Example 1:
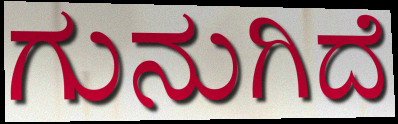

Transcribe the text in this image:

ಗುನುಗಿದೆ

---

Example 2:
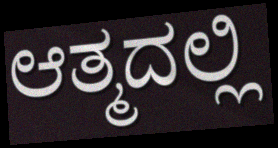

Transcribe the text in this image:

ಆತ್ಮದಲ್ಲಿ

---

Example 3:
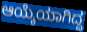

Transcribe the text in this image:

ಆಯ್ಕೆಯಾಗಿದ್ದ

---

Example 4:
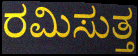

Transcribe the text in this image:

ರಮಿಸುತ್ತ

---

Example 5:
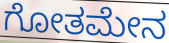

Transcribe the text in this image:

ಗೋತಮೇನ